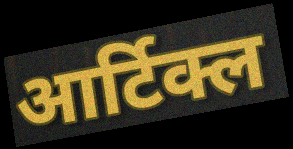
आर्टिक्ल